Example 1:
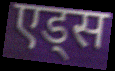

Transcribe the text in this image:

एड्स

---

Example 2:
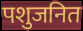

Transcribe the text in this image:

पशुजनित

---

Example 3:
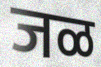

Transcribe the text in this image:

जळ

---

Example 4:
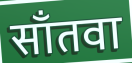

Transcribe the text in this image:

साँतवा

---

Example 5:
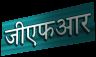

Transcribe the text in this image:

जीएफआर